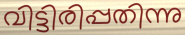
വിട്ടിരിപ്പതിന്നു